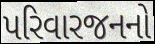
પરિવારજનનો